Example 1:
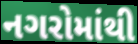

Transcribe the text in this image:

નગરોમાંથી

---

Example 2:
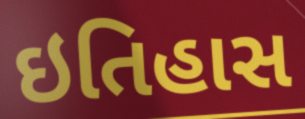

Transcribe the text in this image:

ઇતિહાસ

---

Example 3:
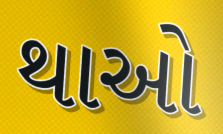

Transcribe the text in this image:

થાઓ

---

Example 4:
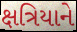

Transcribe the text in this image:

ક્ષત્રિયાને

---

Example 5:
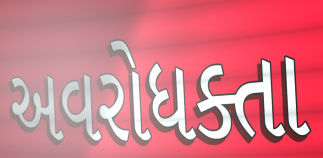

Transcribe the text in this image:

અવરોધક્તા